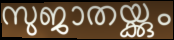
സുജാതയ്ക്കും